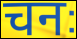
चनः